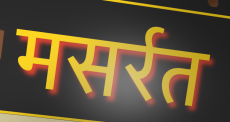
मसर्रत